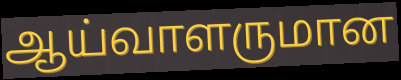
ஆய்வாளருமான